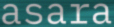
asara